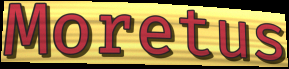
Moretus